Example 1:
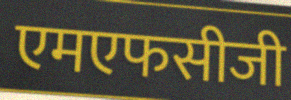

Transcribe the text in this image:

एमएफसीजी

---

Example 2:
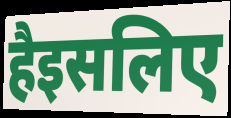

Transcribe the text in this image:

हैइसलिए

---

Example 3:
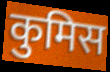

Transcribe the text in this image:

कुमिस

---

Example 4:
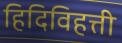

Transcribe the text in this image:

हिदिविहत्ती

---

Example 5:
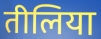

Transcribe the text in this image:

तीलिया